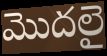
మొదలై